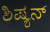
ಶಿಷ್ಯನ್